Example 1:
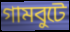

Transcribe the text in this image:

গামবুটে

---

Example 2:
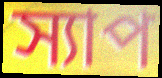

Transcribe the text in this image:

স্যাপ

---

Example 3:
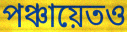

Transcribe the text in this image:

পঞ্চায়েতও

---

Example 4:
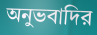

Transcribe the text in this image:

অনুভবাদির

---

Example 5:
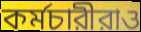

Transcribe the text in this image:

কর্মচারীরাও